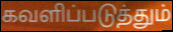
கவளிப்படுத்தும்